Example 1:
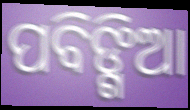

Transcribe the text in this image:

ପବିଙ୍ଗିଆ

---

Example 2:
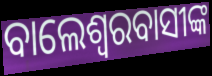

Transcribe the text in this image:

ବାଲେଶ୍ବରବାସୀଙ୍କ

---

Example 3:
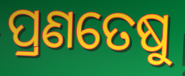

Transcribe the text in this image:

ପ୍ରଣତେଷୁ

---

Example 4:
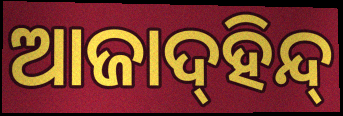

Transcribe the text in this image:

ଆଜାଦ୍‍ହିନ୍ଦ୍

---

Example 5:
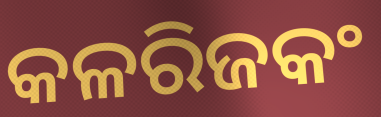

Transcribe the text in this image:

କଳରିଜକଂ